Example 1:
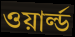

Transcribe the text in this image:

ওয়ার্ল্ড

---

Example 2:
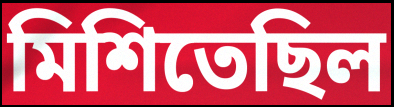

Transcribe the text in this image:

মিশিতেছিল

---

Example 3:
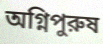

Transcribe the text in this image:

অগ্নিপুরুষ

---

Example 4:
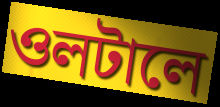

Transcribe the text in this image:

ওলটালে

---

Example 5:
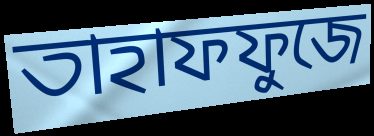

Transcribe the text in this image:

তাহাফফুজে